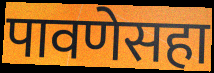
पावणेसहा